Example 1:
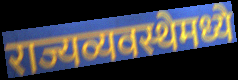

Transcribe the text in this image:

राज्यव्यवस्थेमध्ये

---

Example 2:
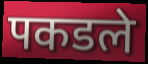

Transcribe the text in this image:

पकडले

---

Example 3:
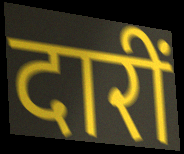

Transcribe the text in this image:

दारीं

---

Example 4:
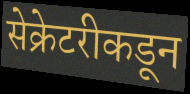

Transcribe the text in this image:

सेक्रेटरीकडून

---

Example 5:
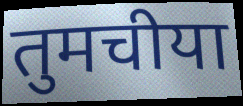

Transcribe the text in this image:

तुमचीया